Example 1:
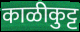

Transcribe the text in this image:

काळीकुट्ट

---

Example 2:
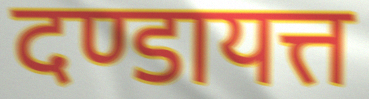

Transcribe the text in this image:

दण्डायत्त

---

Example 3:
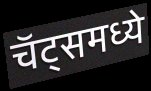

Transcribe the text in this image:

चॅट्समध्ये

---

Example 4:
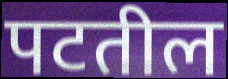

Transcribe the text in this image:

पटतील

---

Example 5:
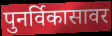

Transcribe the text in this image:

पुनर्विकासावर